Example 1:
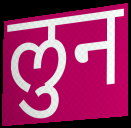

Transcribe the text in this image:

लुन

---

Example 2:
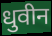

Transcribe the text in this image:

धुवीन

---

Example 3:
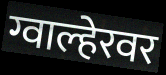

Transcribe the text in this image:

ग्वाल्हेरवर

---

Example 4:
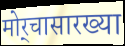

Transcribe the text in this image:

मोर्चासारख्या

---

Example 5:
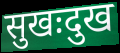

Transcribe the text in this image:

सुखःदुख